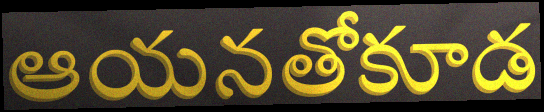
ఆయనతోకూడ